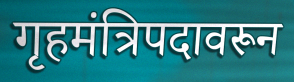
गृहमंत्रिपदावरून